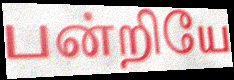
பன்றியே